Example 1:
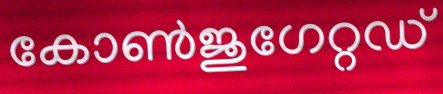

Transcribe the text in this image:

കോൺജുഗേറ്റഡ്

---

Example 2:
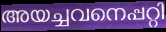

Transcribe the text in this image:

അയച്ചവനെപ്പറ്റി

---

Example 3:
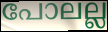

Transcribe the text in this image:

പോലല്ല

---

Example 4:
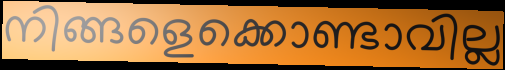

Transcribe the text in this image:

നിങ്ങളെക്കൊണ്ടാവില്ല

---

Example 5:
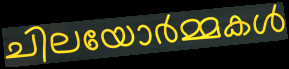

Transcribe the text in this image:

ചിലയോർമ്മകൾ